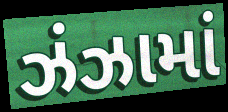
ઝંઝામાં